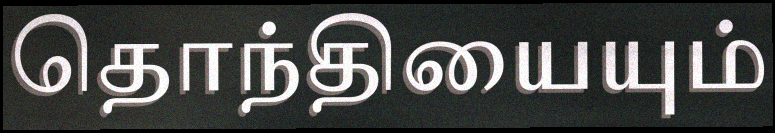
தொந்தியையும்